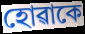
হোৱাকে